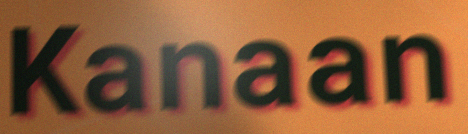
Kanaan